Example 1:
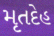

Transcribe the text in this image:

મૃતદેહ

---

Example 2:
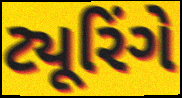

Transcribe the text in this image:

ટ્યૂરિંગે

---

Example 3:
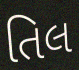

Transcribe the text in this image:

તિલ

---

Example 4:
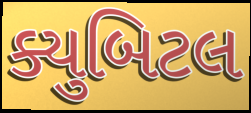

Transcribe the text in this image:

ક્યુબિટલ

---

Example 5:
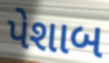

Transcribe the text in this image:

પેશાબ